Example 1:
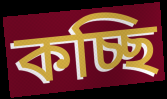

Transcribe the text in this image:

কচ্ছি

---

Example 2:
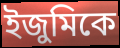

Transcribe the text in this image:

ইজুমিকে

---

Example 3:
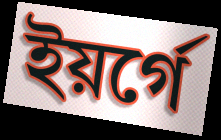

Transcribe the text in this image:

ইয়র্গে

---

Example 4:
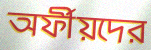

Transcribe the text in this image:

অর্ফীয়দের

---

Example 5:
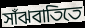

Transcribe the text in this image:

সাঁঝবাতিতে